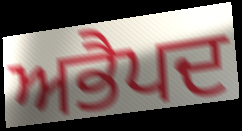
ਅਭੈਪਦ